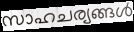
സാഹചര്യങ്ങൾ